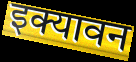
इक्‍यावन